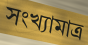
সংখ্যামাত্র